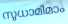
സുധാമിമാം